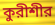
কুরীশীর